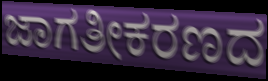
ಜಾಗತೀಕರಣದ